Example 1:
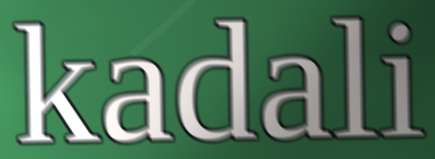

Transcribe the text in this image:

kadali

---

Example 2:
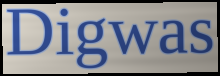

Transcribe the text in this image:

Digwas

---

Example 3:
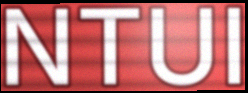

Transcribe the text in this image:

NTUI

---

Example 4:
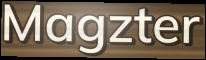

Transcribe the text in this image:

Magzter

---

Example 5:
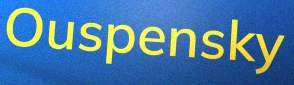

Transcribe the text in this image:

Ouspensky